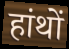
हांथों